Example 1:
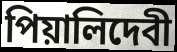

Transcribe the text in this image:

পিয়ালিদেবী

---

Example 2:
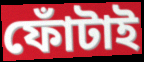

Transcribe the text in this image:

ফোঁটাই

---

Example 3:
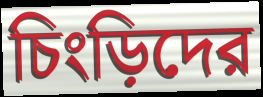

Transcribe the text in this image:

চিংড়িদের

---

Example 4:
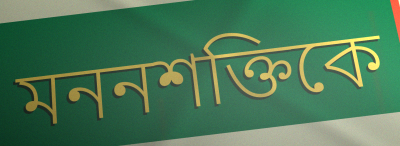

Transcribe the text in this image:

মননশক্তিকে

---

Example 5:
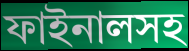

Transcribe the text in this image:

ফাইনালসহ